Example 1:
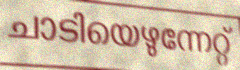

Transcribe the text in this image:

ചാടിയെഴുന്നേറ്റ്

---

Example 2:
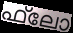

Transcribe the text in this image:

ഫ്‌ലോ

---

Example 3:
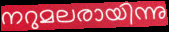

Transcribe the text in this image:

നറുമലരായിന്നു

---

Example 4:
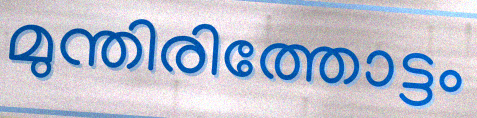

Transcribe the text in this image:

മുന്തിരിത്തോട്ടം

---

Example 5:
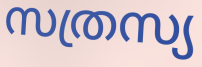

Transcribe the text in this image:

സത്രസ്യ